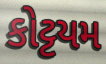
કોટ્ટયમ